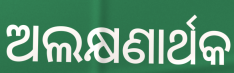
ଅଲକ୍ଷଣାର୍ଥକ